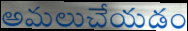
అమలుచేయడం